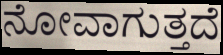
ನೋವಾಗುತ್ತದೆ